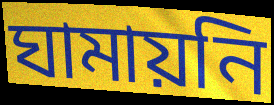
ঘামায়নি